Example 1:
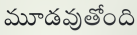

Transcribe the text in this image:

మూడవుతోంది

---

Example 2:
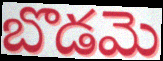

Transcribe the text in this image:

బొడమె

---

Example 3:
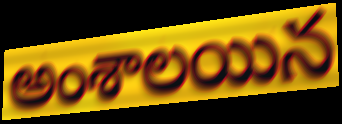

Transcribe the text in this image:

అంశాలయిన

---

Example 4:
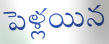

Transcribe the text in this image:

పెళ్లయిన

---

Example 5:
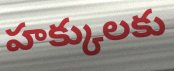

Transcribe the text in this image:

హక్కులకు